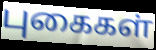
புகைகள்